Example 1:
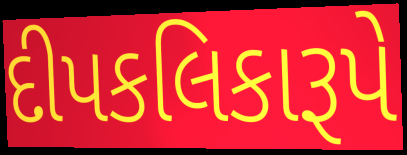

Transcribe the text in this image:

દીપકલિકારૂપે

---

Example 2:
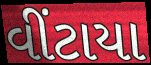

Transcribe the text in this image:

વીંટાયા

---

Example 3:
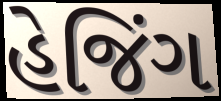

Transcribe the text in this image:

હેજિંગ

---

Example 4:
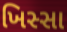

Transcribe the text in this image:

ખિસ્સા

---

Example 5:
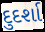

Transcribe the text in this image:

દુદર્શા